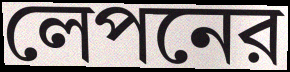
লেপনের